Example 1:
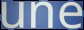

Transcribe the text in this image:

une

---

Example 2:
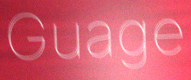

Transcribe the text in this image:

Guage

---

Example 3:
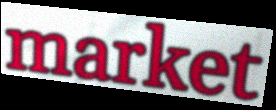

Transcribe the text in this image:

market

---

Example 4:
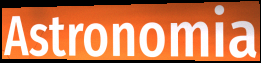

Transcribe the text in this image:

Astronomia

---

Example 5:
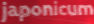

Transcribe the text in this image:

japonicum